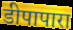
डीपापारा